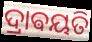
ଦ୍ରାଵୟତି